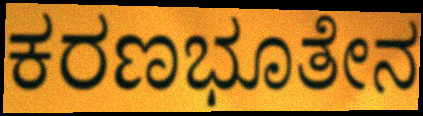
ಕರಣಭೂತೇನ